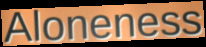
Aloneness